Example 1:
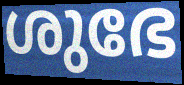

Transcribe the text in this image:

ശുഭേ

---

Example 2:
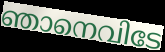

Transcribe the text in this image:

ഞാനെവിടേ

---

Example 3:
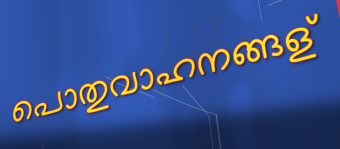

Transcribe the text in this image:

പൊതുവാഹനങ്ങള്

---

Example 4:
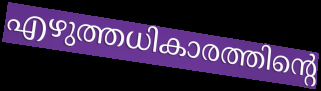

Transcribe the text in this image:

എഴുത്തധികാരത്തിന്റെ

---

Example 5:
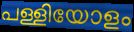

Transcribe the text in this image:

പള്ളിയോളം